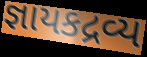
જ્ઞાયકદ્રવ્ય